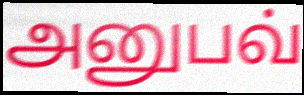
அனுபவ்